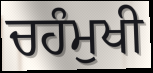
ਚਹੰਮੁਖੀ